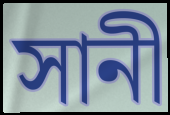
সানী